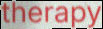
therapy